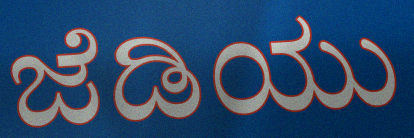
ಜೆಡಿಯು